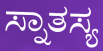
ಸ್ನಾತಸ್ಯ